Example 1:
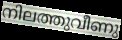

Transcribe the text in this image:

നിലത്തുവീണു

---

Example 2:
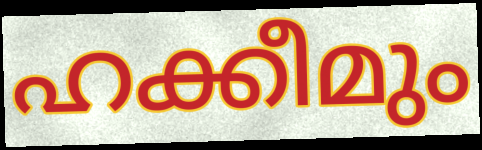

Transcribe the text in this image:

ഹക്കീമും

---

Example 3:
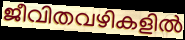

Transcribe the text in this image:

ജീവിതവഴികളിൽ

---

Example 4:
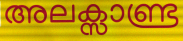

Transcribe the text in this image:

അലക്സാണ്ട്ര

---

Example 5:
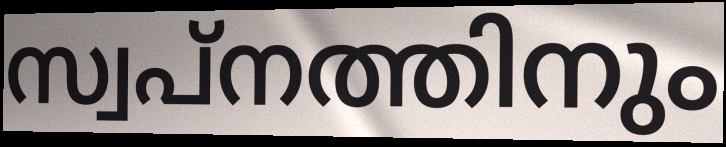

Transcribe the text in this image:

സ്വപ്നത്തിനും